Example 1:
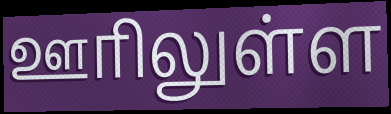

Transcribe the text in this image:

ஊரிலுள்ள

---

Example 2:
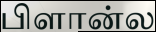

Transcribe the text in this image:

பிளான்ல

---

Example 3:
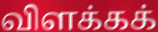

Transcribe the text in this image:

விளக்கக்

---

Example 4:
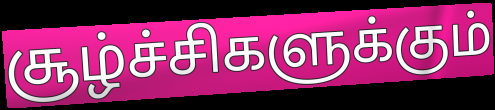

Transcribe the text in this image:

சூழ்ச்சிகளுக்கும்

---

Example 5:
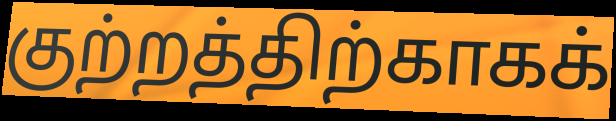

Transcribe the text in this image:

குற்றத்திற்காகக்